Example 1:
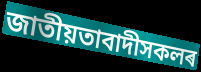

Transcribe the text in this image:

জাতীয়তাবাদীসকলৰ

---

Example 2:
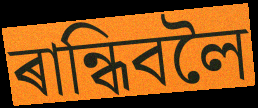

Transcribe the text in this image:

ৰান্ধিবলৈ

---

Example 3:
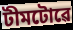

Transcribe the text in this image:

টীমটোৱে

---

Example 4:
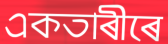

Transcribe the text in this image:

একতাৰীৰে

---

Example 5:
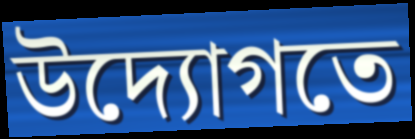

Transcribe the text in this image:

উদ্যোগতে